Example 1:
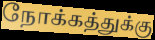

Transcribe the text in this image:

நோக்கத்துக்கு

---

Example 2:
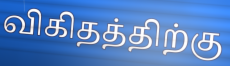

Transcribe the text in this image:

விகிதத்திற்கு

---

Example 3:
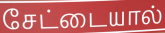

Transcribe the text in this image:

சேட்டையால்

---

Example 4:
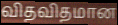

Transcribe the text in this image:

விதவிதமான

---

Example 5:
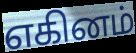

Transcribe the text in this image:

எகினம்